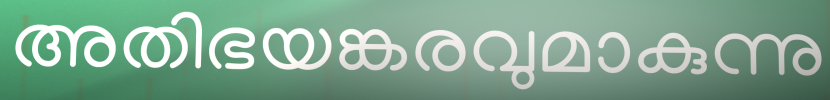
അതിഭയങ്കരവുമാകുന്നു